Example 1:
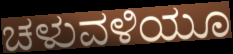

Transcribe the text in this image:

ಚಳುವಳಿಯೂ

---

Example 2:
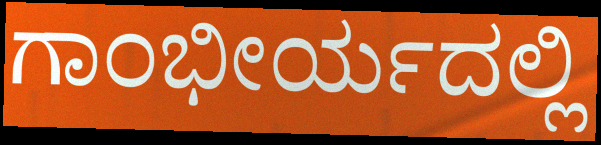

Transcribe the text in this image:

ಗಾಂಭೀರ್ಯದಲ್ಲಿ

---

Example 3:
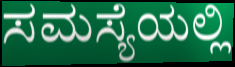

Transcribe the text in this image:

ಸಮಸ್ಯೆಯಲ್ಲಿ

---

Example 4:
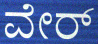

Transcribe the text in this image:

ವೇರ್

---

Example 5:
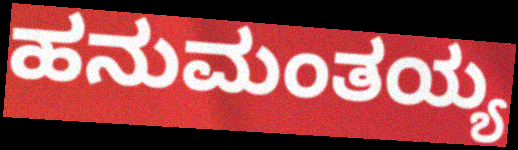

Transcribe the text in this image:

ಹನುಮಂತಯ್ಯ